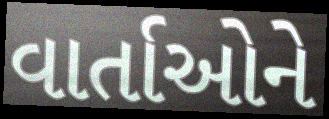
વાર્તાઓને